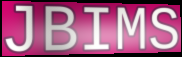
JBIMS